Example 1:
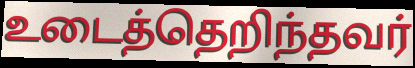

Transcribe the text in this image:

உடைத்தெறிந்தவர்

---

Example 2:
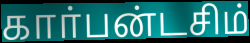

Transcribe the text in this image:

கார்பன்டசிம்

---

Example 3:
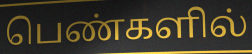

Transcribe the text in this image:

பெண்களில்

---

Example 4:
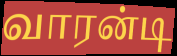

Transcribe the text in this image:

வாரன்டி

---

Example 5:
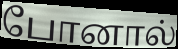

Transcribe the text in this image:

போனால்